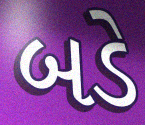
બડે